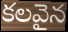
కలవైన